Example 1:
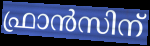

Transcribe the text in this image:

ഫ്രാൻസിന്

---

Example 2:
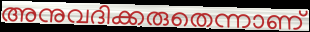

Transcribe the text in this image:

അനുവദിക്കരുതെന്നാണ്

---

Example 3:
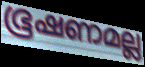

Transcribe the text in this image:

ഭൂഷണമല്ല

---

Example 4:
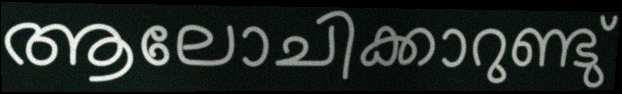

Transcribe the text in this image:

ആലോചിക്കാറുണ്ടു്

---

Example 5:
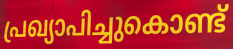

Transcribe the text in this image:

പ്രഖ്യാപിച്ചുകൊണ്ട്